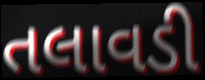
તલાવડી